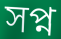
সপ্ন